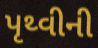
પૃથ્વીની